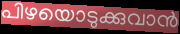
പിഴയൊടുക്കുവാൻ